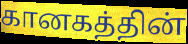
கானகத்தின்